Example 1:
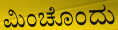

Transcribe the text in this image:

ಮಿಂಚೊಂದು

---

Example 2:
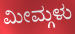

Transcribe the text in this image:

ಮೀಮ್ಗಳು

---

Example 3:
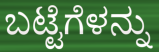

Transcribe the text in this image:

ಬಟ್ಟೆಗೆಳನ್ನು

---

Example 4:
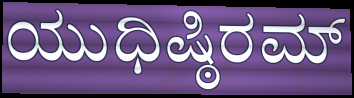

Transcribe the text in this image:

ಯುಧಿಷ್ಠಿರಮ್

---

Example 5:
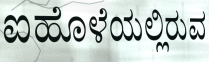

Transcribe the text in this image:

ಐಹೊಳೆಯಲ್ಲಿರುವ